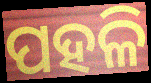
ପହଳି